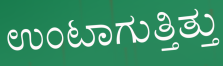
ಉಂಟಾಗುತ್ತಿತ್ತು